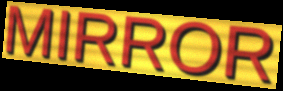
MIRROR